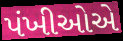
પંખીઓએ